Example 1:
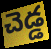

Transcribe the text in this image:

చెడ్డ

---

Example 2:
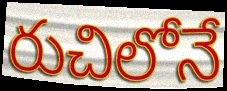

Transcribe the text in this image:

రుచిలోనే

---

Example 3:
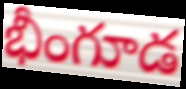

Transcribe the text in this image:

భీంగూడ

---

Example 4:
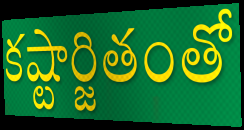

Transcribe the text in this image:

కష్టార్జితంతో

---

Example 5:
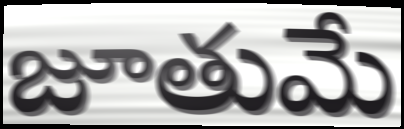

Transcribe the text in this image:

జూతుమే